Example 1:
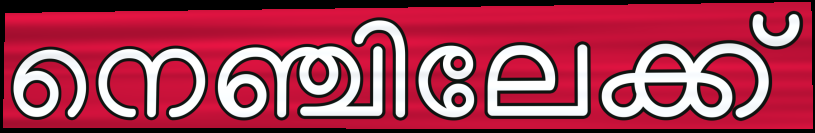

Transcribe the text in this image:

നെഞ്ചിലേക്ക്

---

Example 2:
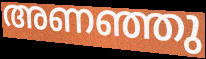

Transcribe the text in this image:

അണഞ്ഞു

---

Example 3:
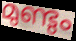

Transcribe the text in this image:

മുണ്ടും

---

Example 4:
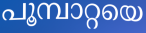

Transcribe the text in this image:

പൂമ്പാറ്റയെ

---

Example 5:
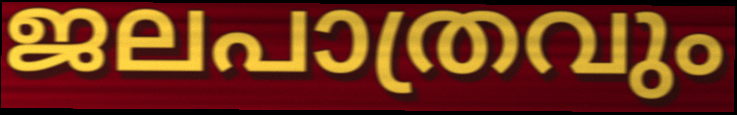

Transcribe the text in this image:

ജലപാത്രവും